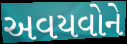
અવયવોને